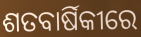
ଶତବାର୍ଷିକୀରେ